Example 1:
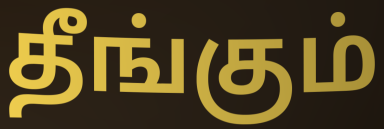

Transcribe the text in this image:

தீங்கும்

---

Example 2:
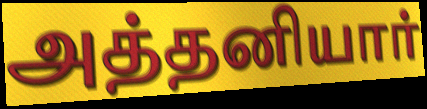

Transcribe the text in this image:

அத்தனியார்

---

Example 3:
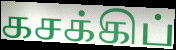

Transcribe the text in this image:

கசக்கிப்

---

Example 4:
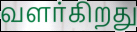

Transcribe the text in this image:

வளர்கிறது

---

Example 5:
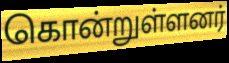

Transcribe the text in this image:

கொன்றுள்ளனர்